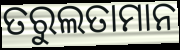
ତରୁଲତାମାନ